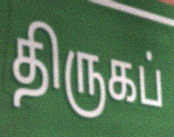
திருகப்